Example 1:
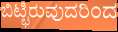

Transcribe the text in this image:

ಬಿಟ್ಟಿರುವುದರಿಂದ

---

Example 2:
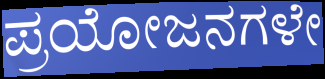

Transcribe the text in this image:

ಪ್ರಯೋಜನಗಳೇ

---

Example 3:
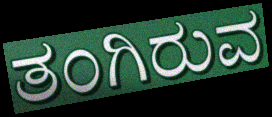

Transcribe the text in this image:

ತಂಗಿರುವ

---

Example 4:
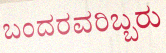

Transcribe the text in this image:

ಬಂದರವರಿಬ್ಬರು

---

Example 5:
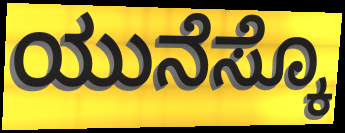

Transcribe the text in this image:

ಯುನೆಸ್ಕೊ